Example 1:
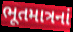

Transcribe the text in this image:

ભૂતમાત્રનાં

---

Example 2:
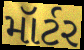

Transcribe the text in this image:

મૉર્ટર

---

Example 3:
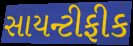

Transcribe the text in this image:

સાયન્ટીફીક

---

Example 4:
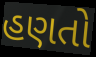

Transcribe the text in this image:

હણતો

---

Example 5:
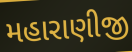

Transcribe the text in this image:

મહારાણીજી